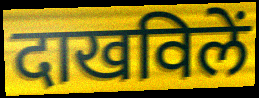
दाखविलें